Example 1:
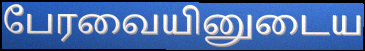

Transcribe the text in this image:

பேரவையினுடைய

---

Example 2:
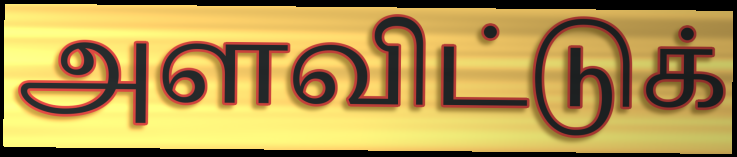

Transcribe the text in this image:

அளவிட்டுக்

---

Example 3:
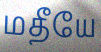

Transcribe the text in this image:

மதீயே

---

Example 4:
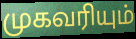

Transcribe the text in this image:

முகவரியும்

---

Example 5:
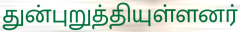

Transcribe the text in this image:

துன்புறுத்தியுள்ளனர்